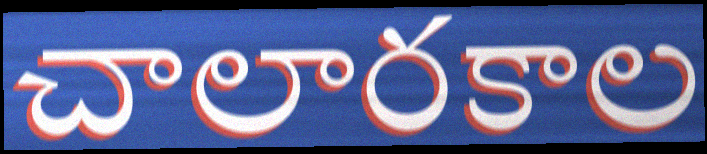
చాలారకాల